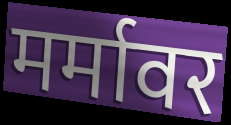
मर्मावर